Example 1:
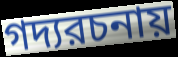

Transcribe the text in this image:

গদ্যরচনায়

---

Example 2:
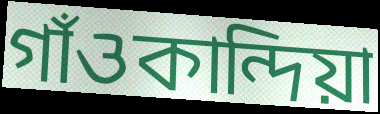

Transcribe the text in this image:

গাঁওকান্দিয়া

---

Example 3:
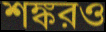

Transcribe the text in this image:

শঙ্করও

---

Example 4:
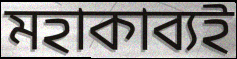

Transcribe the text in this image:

মহাকাব্যই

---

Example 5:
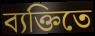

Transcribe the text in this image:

ব্যক্তিতে